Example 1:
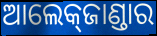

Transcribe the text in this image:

ଆଲେକ୍‌ଜାଣ୍ଡାର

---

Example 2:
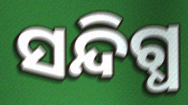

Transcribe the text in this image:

ସନ୍ଦିଗ୍ଧ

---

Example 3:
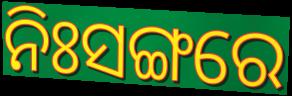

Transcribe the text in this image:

ନିଃସଙ୍ଗରେ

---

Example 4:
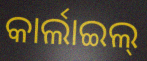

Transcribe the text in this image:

କାର୍ଲାଇଲ୍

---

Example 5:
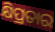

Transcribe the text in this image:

କ୍ଷିପ୍ରତାର